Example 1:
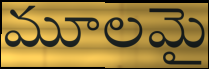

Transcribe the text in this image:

మూలమై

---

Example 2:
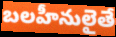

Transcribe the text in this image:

బలహీనులైతే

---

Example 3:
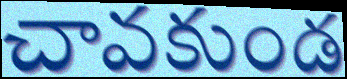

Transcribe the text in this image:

చావకుండ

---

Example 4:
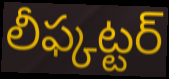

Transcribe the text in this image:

లీఫ్కట్టర్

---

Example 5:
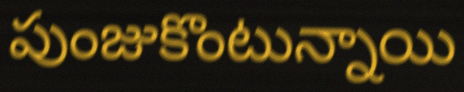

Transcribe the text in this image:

పుంజుకొంటున్నాయి